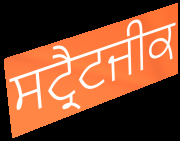
ਸਟ੍ਰੈਟਜੀਕ